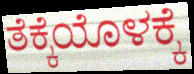
ತೆಕ್ಕೆಯೊಳಕ್ಕೆ